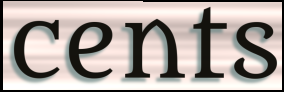
cents